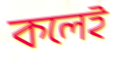
কলেই